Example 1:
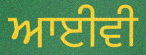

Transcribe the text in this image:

ਆਈਵੀ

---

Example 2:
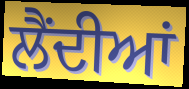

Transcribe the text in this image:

ਲੈਂਦੀਆਂ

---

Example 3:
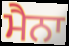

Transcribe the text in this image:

ਮੈਨਾ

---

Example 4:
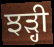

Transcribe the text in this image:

ਝੜ੍ਹੀ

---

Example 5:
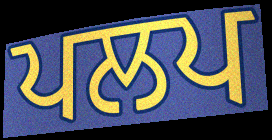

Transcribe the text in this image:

ਪਲਪ